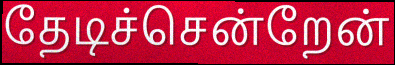
தேடிச்சென்றேன்